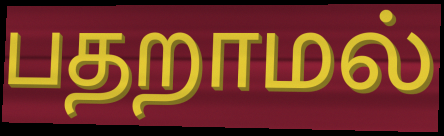
பதறாமல்